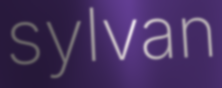
sylvan